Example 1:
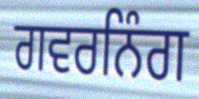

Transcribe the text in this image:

ਗਵਰਨਿੰਗ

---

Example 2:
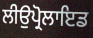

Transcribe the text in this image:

ਲੀਉਪ੍ਰੋਲਾਇਡ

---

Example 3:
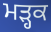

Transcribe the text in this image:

ਮੜ੍ਹਕ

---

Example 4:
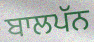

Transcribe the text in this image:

ਬਾਲਪੱਨ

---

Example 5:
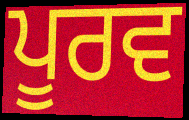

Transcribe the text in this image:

ਪੂਰਵ